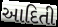
આદિતી